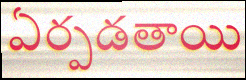
ఏర్పడతాయి